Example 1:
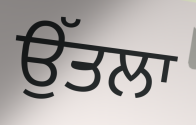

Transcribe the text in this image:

ਉੱਤਲਾ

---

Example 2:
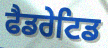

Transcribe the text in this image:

ਫੈਡਰੇਟਿਡ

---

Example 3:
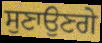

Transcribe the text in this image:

ਸੁਣਾਉਣਗੇ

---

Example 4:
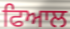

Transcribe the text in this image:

ਫਿਆਲ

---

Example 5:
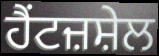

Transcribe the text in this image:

ਹੈਂਟਜ਼ਸ਼ੇਲ